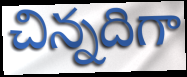
చిన్నదిగా